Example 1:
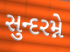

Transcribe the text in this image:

સુન્દરમ્ને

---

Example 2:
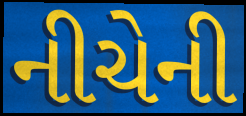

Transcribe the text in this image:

નીચેની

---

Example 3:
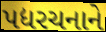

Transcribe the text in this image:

પદ્યરચનાને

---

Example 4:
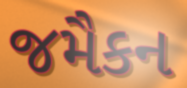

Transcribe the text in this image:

જમૈકન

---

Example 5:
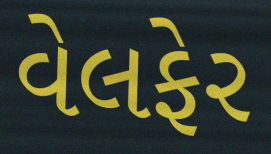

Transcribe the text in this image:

વેલફેર